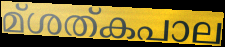
മ്ശത്കപാല